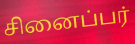
சினைப்பர்